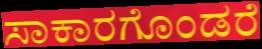
ಸಾಕಾರಗೊಂಡರೆ